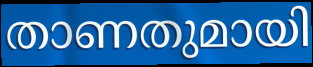
താണതുമായി